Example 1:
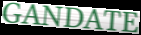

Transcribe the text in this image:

GANDATE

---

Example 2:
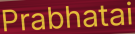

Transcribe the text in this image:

Prabhatai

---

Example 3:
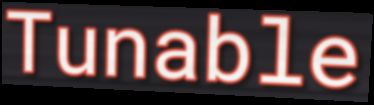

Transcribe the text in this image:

Tunable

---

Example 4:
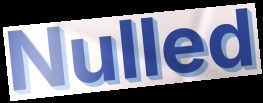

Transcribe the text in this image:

Nulled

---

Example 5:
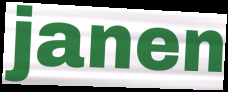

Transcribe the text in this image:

janen